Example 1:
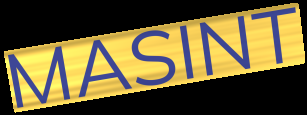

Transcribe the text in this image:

MASINT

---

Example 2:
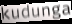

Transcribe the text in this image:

kudunga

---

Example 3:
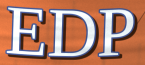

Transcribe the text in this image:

EDP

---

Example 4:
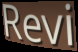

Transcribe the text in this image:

Revi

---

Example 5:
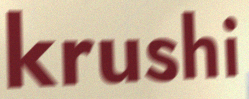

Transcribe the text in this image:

krushi